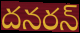
దనరన్